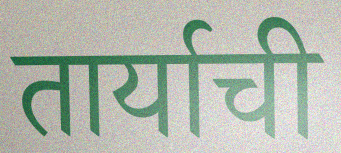
तार्याची